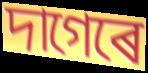
দাগেৰে